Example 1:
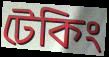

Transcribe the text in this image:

টেকিং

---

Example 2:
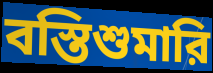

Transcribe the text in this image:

বস্তিশুমারি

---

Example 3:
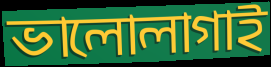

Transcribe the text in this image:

ভালোলাগাই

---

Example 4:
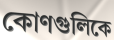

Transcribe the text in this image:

কোণগুলিকে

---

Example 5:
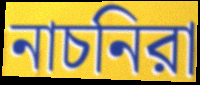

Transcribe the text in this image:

নাচনিরা